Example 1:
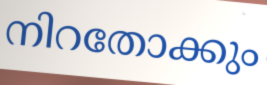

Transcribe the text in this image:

നിറതോക്കും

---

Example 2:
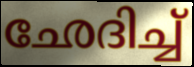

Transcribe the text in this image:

ഛേദിച്ച്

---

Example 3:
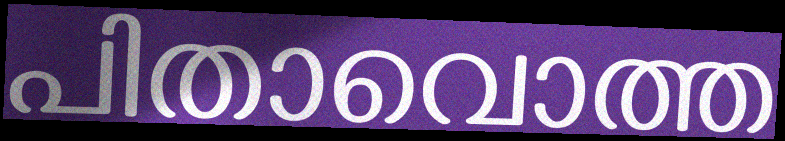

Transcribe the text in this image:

പിതാവൊത്ത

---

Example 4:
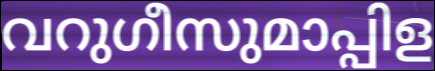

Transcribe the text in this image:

വറുഗീസുമാപ്പിള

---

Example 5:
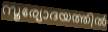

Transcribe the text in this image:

സൂര്യോദയത്തിൽ